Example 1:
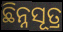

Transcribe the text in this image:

ଛିନ୍ନସୂତ୍ର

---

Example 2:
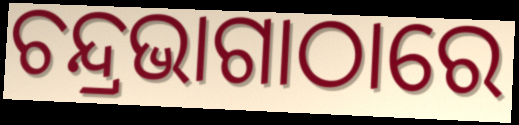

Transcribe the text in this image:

ଚନ୍ଦ୍ରଭାଗାଠାରେ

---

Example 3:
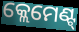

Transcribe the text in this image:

କ୍ଲେମେଣ୍ଟ୍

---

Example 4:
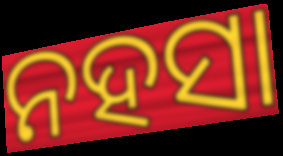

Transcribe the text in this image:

ନହସା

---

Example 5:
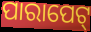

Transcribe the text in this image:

ପାରାପେଟ୍